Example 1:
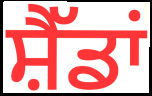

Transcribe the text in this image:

ਸ਼ੈੱਡਾਂ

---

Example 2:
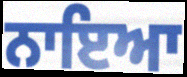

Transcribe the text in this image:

ਨਾਇਆ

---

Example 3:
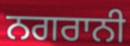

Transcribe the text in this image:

ਨਗਰਾਨੀ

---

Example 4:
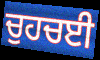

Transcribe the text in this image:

ਚੁਹਚਈ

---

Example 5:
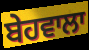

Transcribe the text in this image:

ਬੇਹਵਾਲਾ